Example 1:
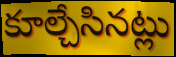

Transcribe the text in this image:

కూల్చేసినట్లు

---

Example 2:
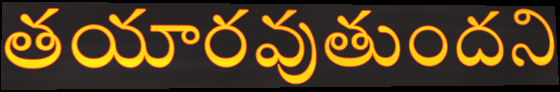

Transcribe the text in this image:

తయారవుతుందని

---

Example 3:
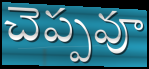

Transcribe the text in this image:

చెప్పవూ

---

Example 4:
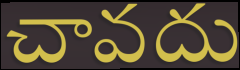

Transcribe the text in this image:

చావదు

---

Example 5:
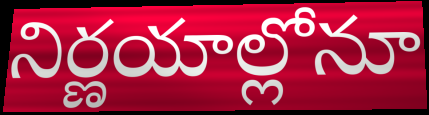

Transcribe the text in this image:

నిర్ణయాల్లోనూ